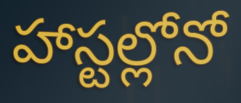
హాస్టల్లోనో